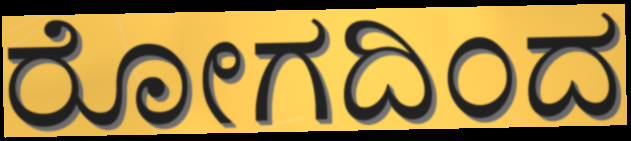
ರೋಗದಿಂದ